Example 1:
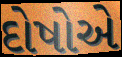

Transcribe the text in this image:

દોષોએ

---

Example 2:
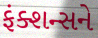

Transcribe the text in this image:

ફંક્શન્સને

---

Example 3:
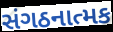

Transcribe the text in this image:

સંગઠનાત્મક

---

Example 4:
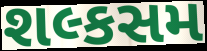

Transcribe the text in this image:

શલ્કસમ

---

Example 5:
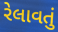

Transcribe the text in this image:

રેલાવતું